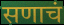
सणाचं